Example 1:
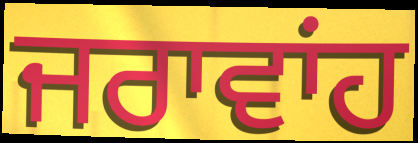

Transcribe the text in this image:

ਜਰਾਵਾਂਹ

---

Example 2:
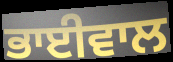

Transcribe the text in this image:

ਭਾਈਵਾਲ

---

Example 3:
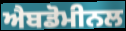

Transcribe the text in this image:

ਐਬਡੋਮੀਨਲ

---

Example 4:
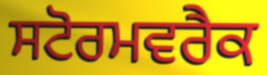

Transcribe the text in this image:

ਸਟੋਰਮਵਰੈਕ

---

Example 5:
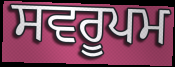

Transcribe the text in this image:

ਸਵਰੂਪਮ